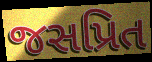
જસપ્રિત